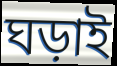
ঘড়াই